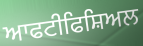
ਆਫਟੀਫਿਸ਼ਿਅਲ